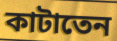
কাটাতেন